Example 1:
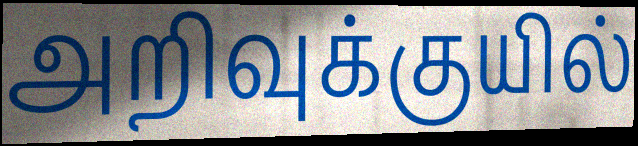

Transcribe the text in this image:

அறிவுக்குயில்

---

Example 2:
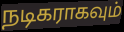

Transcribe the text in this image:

நடிகராகவும்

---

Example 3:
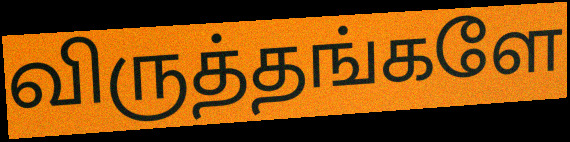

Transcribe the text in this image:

விருத்தங்களே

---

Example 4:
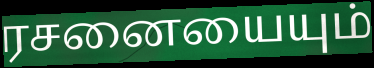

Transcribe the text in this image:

ரசனையையும்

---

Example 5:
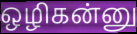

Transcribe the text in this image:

ஒழிகன்னு